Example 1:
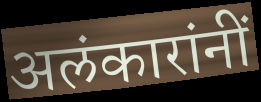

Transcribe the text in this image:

अलंकारांनीं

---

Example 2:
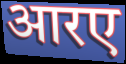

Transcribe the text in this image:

आरए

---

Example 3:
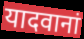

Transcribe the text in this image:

यादवानां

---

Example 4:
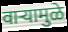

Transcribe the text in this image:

वाऱ्यामुळे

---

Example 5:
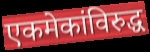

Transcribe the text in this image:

एकमेकांविरुद्ध